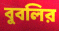
বুবলির